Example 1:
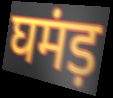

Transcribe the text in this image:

घमंड़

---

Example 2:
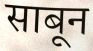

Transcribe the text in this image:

साबून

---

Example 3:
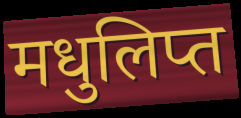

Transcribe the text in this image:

मधुलिप्त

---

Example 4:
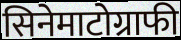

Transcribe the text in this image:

सिनेमाटोग्राफी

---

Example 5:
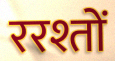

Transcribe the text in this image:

ररश्तों